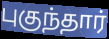
புகுந்தார்